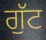
ਗੁੱਟ